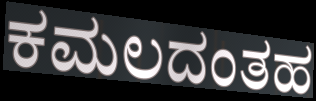
ಕಮಲದಂತಹ